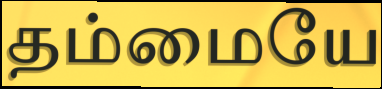
தம்மையே